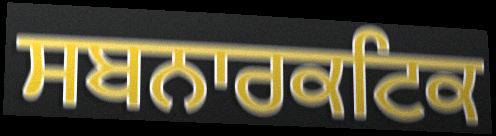
ਸਬਨਾਰਕਟਿਕ